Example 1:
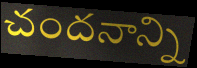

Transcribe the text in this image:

చందనాన్ని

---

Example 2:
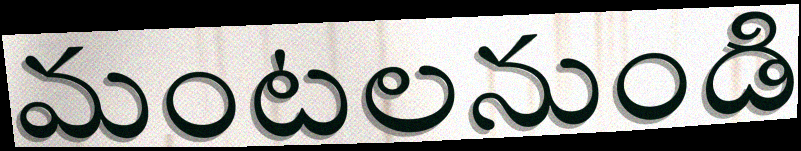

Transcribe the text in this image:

మంటలనుండి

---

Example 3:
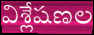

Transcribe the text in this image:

విశ్లేషణల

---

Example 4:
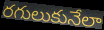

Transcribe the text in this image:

రగులుకునేలా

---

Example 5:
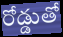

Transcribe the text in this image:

రోడ్డుతో